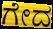
ಗೇದ